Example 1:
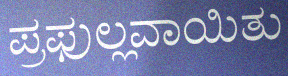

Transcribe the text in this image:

ಪ್ರಫುಲ್ಲವಾಯಿತು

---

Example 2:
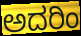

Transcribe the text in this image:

ಅದರಿಂ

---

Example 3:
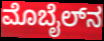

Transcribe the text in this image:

ಮೊಬೈಲ್‌ನ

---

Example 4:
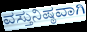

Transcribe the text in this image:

ವಸ್ತುನಿಷ್ಠವಾಗಿ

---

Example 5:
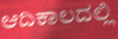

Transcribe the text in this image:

ಆದಿಕಾಲದಲ್ಲಿ